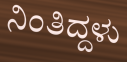
ನಿಂತಿದ್ದಳು